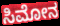
ಸಿಮೋನ